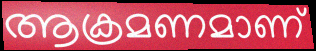
ആക്രമണമാണ്